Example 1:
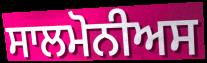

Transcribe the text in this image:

ਸਾਲਮੋਨੀਅਸ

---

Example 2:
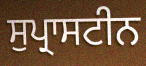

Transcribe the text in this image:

ਸੁਪ੍ਰਾਸਟੀਨ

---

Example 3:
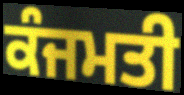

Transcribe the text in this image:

ਕੰਜਮਤੀ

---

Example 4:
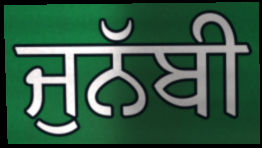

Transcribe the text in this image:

ਜੁਨੱਬੀ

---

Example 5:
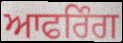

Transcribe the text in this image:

ਆਫਰਿੰਗ